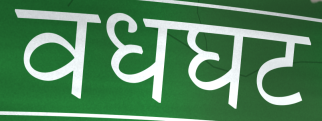
वधघट